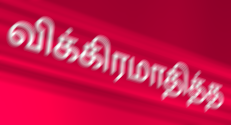
விக்கிரமாதித்த